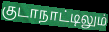
குடாநாட்டிலும்